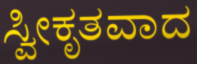
ಸ್ವೀಕೃತವಾದ